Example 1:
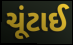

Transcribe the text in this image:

ચૂંટાઈ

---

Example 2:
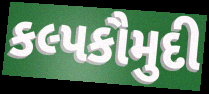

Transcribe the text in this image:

કલ્પકૌમુદી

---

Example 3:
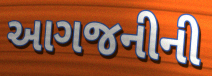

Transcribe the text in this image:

આગજનીની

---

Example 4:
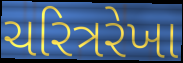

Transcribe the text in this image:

ચરિત્રરેખા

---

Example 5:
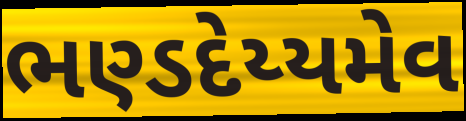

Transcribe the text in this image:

ભણ્ડદેય્યમેવ